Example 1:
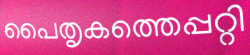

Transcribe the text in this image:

പൈതൃകത്തെപ്പറ്റി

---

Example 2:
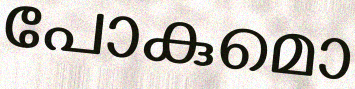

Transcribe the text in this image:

പോകുമൊ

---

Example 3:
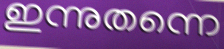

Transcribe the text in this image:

ഇന്നുതന്നെ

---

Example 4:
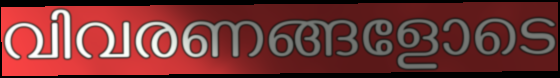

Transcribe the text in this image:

വിവരണങ്ങളോടെ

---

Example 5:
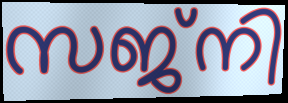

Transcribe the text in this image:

സജ്നി